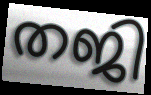
തജി